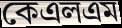
কেএলএম